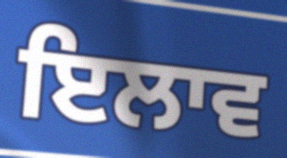
ਇਲਾਵ